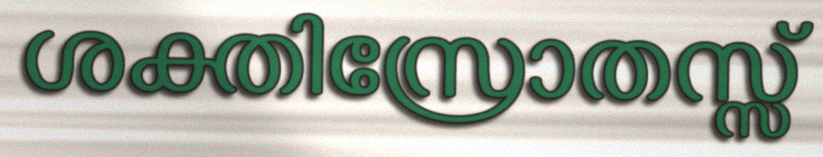
ശക്തിസ്രോതസ്സ്